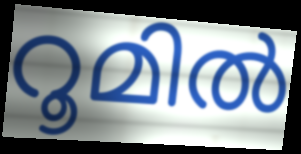
റൂമിൽ